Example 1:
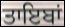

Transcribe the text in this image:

ਤਾਇਬਾਂ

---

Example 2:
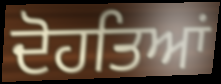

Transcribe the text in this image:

ਦੋਹਤਿਆਂ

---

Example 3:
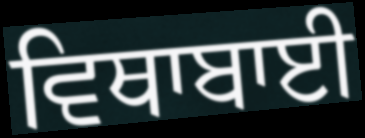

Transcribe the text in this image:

ਵਿਥਾਬਾਈ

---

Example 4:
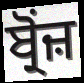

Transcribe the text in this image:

ਬ੍ਰੋਂਜ਼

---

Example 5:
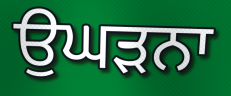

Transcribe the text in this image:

ਉਘੜਨਾ